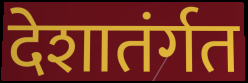
देशातंर्गत